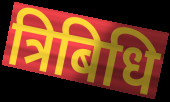
त्रिबिधि